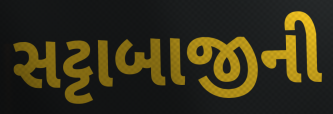
સટ્ટાબાજીની